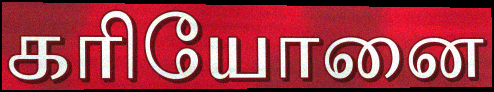
கரியோனை